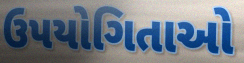
ઉપયોગિતાઓ